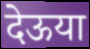
देऊया